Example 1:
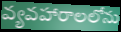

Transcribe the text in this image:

వ్యవహారాలలోను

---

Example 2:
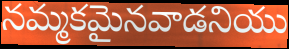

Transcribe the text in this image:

నమ్మకమైనవాడనియు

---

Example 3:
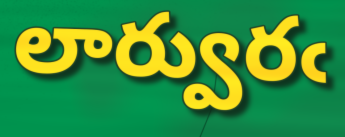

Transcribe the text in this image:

లార్వురఁ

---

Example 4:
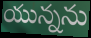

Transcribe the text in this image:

యున్నను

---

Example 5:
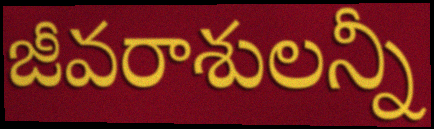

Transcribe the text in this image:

జీవరాశులన్నీ